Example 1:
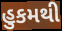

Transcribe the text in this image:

હુકમથી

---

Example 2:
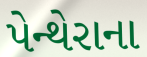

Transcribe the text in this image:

પેન્થેરાના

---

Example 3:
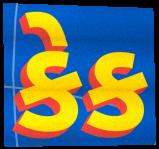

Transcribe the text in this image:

કેક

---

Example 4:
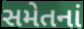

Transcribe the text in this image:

સમેતનાં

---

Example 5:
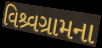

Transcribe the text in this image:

વિશ્ર્વગ્રામના